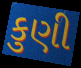
કુણી